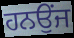
ਹਨਉਂਜ